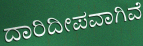
ದಾರಿದೀಪವಾಗಿವೆ